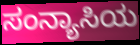
ಸಂನ್ಯಾಸಿಯ